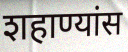
शहाण्यांस